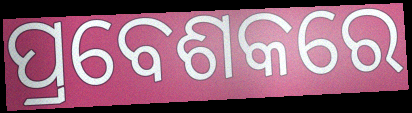
ପ୍ରବେଶକରେ